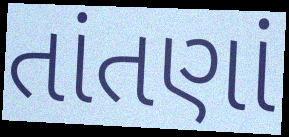
તાંતણાં